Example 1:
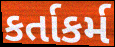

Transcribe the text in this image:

કર્તાકર્મ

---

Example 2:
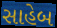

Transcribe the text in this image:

સાહેબ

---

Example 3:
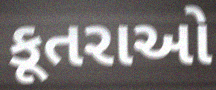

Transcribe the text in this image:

કૂતરાઓ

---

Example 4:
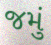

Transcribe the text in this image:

જમું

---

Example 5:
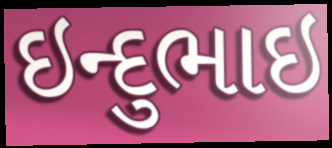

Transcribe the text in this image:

ઇન્દુભાઇ